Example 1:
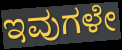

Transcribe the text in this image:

ಇವುಗಳೇ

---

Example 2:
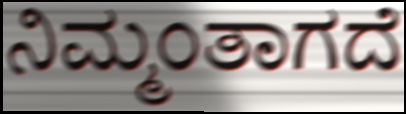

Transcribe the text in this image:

ನಿಮ್ಮಂತಾಗದೆ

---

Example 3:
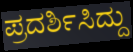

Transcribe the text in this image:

ಪ್ರದರ್ಶಿಸಿದ್ದು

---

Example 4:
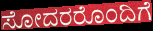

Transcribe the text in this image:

ಸೋದರರೊಂದಿಗೆ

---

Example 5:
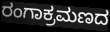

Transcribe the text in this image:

ರಂಗಾಕ್ರಮಣದ